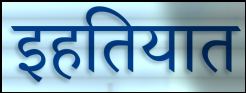
इहतियात